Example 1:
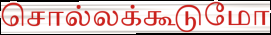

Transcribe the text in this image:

சொல்லக்கூடுமோ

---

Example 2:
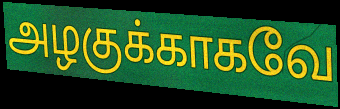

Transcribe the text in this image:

அழகுக்காகவே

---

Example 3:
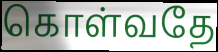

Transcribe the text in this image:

கொள்வதே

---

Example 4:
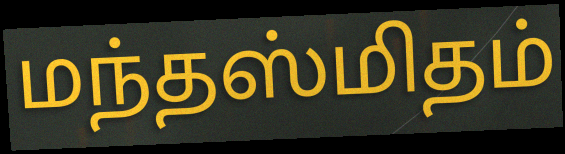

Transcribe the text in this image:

மந்தஸ்மிதம்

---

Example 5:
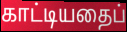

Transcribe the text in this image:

காட்டியதைப்